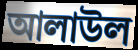
আলাউল